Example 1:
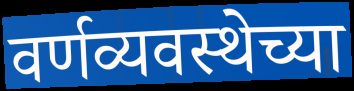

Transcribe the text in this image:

वर्णव्यवस्थेच्या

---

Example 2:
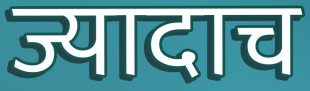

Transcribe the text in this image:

ज्यादाच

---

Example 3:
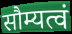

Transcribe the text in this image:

सौम्यत्वं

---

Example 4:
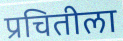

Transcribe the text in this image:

प्रचितीला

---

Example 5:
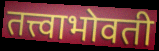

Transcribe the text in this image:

तत्त्वाभोवती